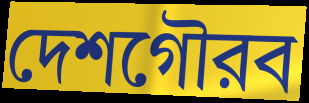
দেশগৌরব